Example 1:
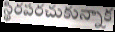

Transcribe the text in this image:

స్థిరపరచుకున్నాక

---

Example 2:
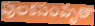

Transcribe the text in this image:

పులకసంవృతా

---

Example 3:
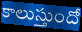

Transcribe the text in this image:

కాలుస్తుందో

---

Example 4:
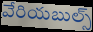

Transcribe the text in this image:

వేరియబుల్స్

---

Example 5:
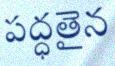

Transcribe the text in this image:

పద్ధతైన